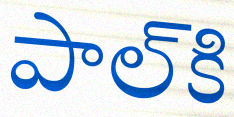
పాల్‌కి